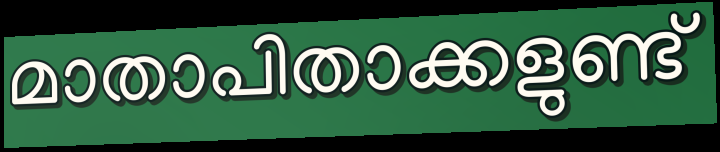
മാതാപിതാക്കളുണ്ട്